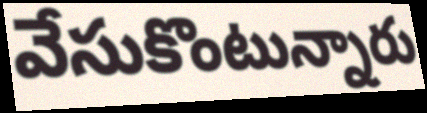
వేసుకొంటున్నారు